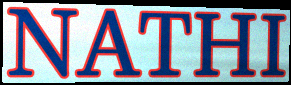
NATHI